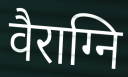
वैराग्नि